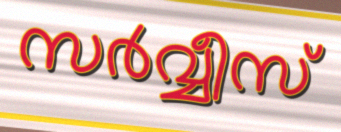
സർവ്വീസ്